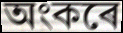
অংকৰে